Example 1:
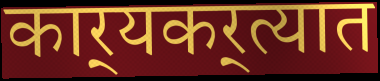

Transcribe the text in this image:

कार्यकर्त्यात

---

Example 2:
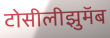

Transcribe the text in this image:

टोसीलीझुमॅब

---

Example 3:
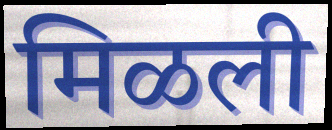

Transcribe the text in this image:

मिळली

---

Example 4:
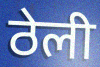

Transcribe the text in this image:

ठेली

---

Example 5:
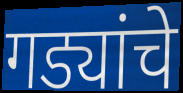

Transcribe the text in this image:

गड्यांचे